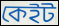
কেইট